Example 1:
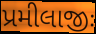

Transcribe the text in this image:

પ્રમીલાજીઃ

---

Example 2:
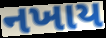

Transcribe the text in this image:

નખાય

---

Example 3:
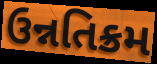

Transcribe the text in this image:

ઉન્નતિક્રમ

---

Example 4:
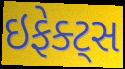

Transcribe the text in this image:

ઇફેક્ટ્સ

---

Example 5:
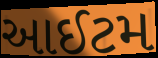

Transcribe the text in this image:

આઈટમ